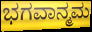
ಭಗವಾನ್ಮಮ